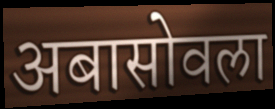
अबासोवला